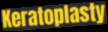
Keratoplasty